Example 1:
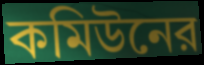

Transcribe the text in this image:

কমিউনের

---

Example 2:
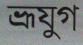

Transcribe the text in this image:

ভ্রূযুগ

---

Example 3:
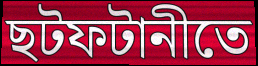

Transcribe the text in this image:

ছটফটানীতে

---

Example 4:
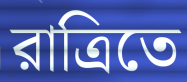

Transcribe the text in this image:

রাত্রিতে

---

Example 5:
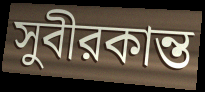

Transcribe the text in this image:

সুবীরকান্ত